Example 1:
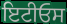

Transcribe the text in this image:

ਇਟੀਓਸ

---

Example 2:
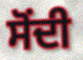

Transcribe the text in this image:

ਸੋਂਦੀ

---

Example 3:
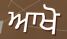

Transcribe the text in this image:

ਆਖੋ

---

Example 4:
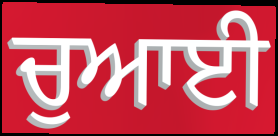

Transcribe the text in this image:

ਚੁਆਈ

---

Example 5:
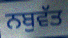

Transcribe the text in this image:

ਨਬੁਵੱਤ